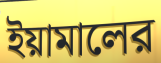
ইয়ামালের